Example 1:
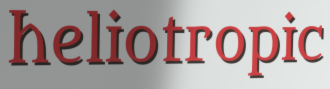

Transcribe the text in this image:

heliotropic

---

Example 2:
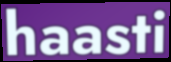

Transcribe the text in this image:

haasti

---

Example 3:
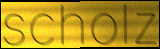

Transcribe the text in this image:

scholz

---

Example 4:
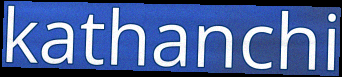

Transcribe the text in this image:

kathanchi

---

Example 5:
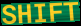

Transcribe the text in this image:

SHIFT